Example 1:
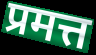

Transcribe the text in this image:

प्रमत्त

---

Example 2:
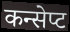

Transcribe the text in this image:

कन्सेप्ट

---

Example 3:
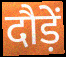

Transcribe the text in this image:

दौड़ें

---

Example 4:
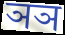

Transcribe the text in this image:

ञञ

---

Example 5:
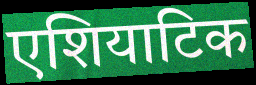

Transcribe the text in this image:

एशियाटिक